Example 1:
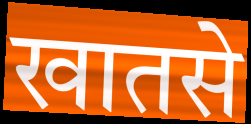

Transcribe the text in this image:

खातसे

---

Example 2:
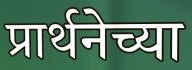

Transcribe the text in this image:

प्रार्थनेच्या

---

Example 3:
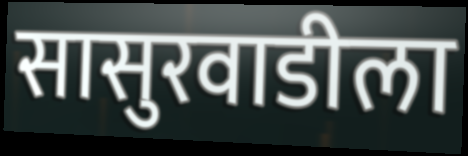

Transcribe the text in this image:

सासुरवाडीला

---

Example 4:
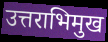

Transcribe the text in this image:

उत्तराभिमुख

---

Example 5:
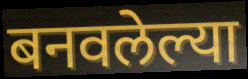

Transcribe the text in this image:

बनवलेल्या